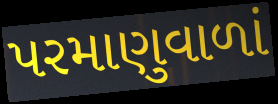
પરમાણુવાળાં